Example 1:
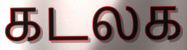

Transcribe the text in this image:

கடலக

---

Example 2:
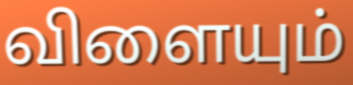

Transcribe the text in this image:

விளையும்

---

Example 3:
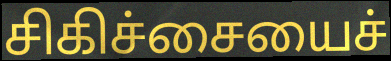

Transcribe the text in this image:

சிகிச்சையைச்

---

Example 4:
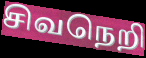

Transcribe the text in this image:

சிவநெறி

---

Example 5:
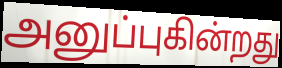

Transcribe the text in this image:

அனுப்புகின்றது